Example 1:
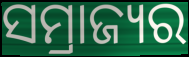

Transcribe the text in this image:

ସମ୍ରାଜ୍ୟର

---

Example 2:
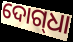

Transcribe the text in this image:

ଦୋଗ୍‌ଧା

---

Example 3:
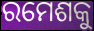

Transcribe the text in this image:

ରମେଶକୁ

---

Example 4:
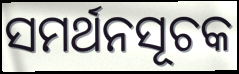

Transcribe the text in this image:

ସମର୍ଥନସୂଚକ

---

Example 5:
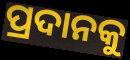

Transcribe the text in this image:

ପ୍ରଦାନକୁ